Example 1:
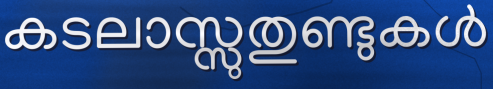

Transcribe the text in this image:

കടലാസ്സുതുണ്ടുകൾ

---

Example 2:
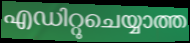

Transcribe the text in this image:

എഡിറ്റുചെയ്യാത്ത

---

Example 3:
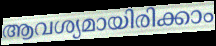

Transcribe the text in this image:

ആവശ്യമായിരിക്കാം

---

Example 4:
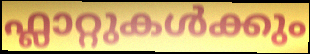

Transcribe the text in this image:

ഫ്ലാറ്റുകൾക്കും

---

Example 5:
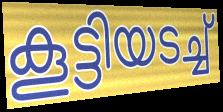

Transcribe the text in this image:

കൂട്ടിയടച്ച്